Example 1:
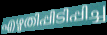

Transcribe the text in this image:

എഴുതിപ്പിടിപ്പിച്ച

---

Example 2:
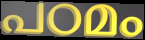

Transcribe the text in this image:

പഠമം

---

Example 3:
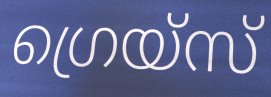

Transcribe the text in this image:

ഗ്രെയ്സ്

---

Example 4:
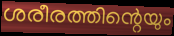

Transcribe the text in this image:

ശരീരത്തിന്റെയും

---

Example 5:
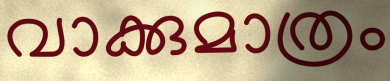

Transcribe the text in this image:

വാക്കുമാത്രം